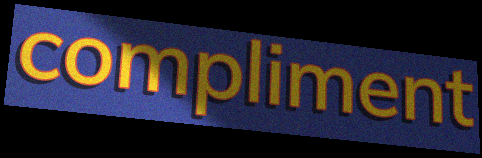
compliment